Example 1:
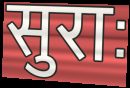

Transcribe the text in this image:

सुराः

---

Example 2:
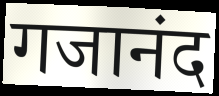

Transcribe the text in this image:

गजानंद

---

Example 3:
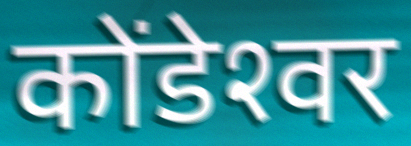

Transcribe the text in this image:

कोंडेश्वर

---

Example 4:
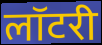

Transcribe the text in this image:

लॉटरी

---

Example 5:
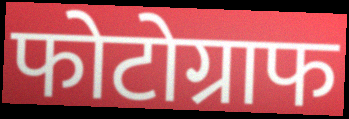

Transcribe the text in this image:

फोटोग्राफ